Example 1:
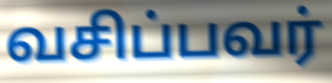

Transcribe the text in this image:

வசிப்பவர்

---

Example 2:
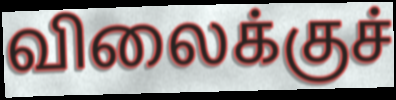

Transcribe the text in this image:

விலைக்குச்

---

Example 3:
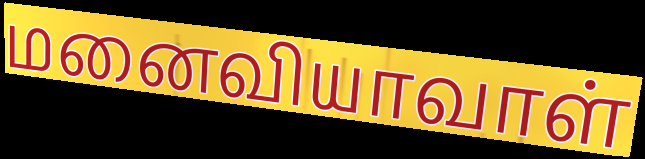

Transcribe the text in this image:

மனைவியாவாள்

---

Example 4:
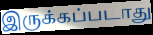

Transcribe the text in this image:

இருக்கப்படாது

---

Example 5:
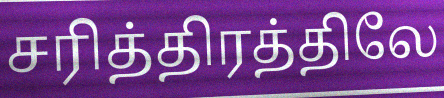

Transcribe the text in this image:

சரித்திரத்திலே